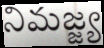
నిమజ్జ్య